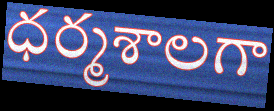
ధర్మశాలగా